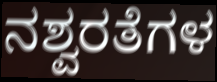
ನಶ್ವರತೆಗಳ